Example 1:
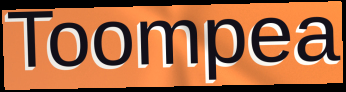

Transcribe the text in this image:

Toompea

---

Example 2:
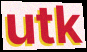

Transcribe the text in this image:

utk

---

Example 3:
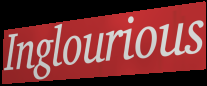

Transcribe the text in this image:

Inglourious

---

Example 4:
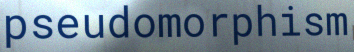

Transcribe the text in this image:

pseudomorphism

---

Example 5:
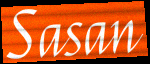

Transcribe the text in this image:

Sasan